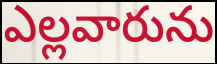
ఎల్లవారును